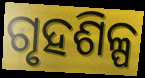
ଗୃହଶିଳ୍ପ